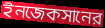
ইনজেকসানের